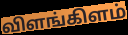
விளங்கிளம்